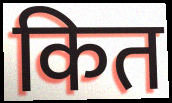
कित